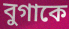
বুগাকে